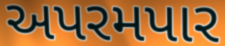
અપરમપાર